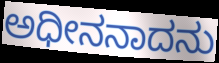
ಅಧೀನನಾದನು